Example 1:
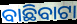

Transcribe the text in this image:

ବାଛିବାଟା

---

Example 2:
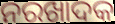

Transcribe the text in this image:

ନରଖାଦକ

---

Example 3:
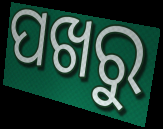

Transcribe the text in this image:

ପଖରୁ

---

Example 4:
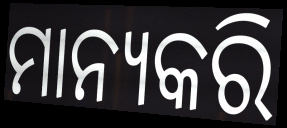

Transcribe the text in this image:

ମାନ୍ୟକରି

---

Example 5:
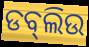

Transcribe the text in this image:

ଡବ୍‍ଲିଉ